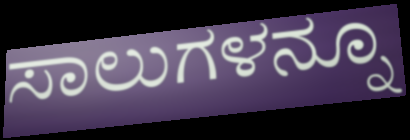
ಸಾಲುಗಳನ್ನೂ